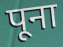
पूना